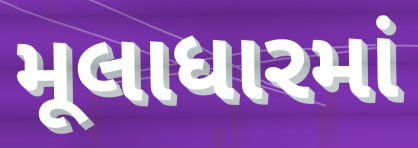
મૂલાધારમાં